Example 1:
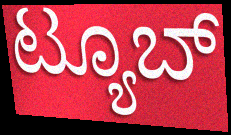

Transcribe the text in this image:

ಟ್ಯೂಬ್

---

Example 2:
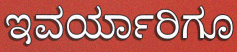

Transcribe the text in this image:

ಇವರ್ಯಾರಿಗೂ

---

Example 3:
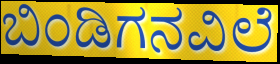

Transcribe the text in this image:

ಬಿಂಡಿಗನವಿಲೆ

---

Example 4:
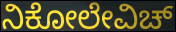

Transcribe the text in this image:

ನಿಕೋಲೇವಿಚ್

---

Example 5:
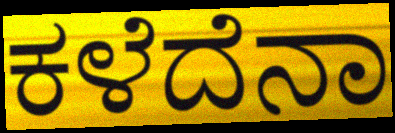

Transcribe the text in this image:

ಕಳೆದೆನಾ